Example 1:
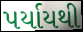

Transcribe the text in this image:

પર્યાયથી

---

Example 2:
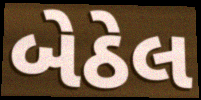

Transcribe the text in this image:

બેઠેલ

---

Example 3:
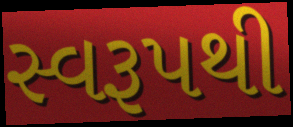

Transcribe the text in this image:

સ્વરૂપથી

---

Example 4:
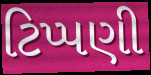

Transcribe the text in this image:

ટિપ્પણી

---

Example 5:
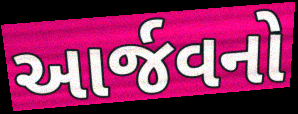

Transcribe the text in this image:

આર્જવનો